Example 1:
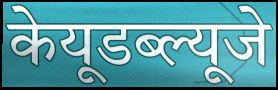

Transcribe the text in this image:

केयूडब्ल्यूजे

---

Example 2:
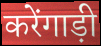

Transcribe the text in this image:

करेंगाड़ी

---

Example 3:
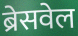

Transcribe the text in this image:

ब्रेसवेल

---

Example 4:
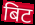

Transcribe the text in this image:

बिट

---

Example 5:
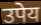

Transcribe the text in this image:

उपेय